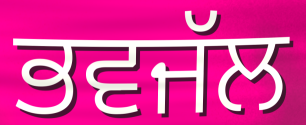
ਭਵਜੱਲ